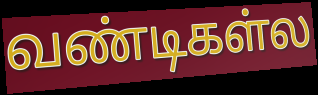
வண்டிகள்ல